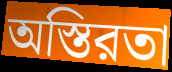
অস্তিরতা